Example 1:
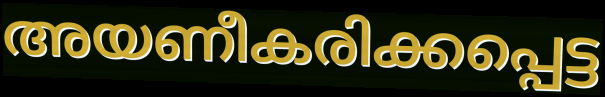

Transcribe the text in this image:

അയണീകരിക്കപ്പെട്ട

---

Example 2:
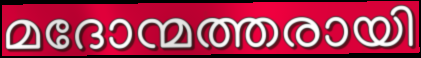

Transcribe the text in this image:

മദോന്മത്തരായി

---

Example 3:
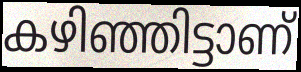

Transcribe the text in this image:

കഴിഞ്ഞിട്ടാണ്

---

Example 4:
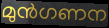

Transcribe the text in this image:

മുൻഗണന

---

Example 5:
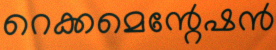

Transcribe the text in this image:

റെക്കമെന്റേഷൻ